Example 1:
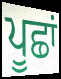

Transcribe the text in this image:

ਪੂਛਾਂ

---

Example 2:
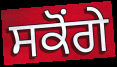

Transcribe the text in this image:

ਸਕੋਂਗੇ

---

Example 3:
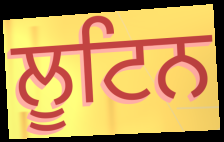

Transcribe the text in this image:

ਲੂਟਿਨ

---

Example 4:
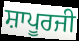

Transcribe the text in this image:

ਸ਼ਾਪੂਰਜੀ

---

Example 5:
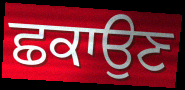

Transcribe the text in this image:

ਛਕਾਉਣ